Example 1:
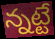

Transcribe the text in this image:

న్నట్టే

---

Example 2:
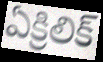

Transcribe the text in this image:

ఏక్రిలిక్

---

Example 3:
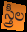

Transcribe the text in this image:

స్త్రీల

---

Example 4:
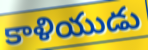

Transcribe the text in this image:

కాళియుడు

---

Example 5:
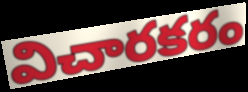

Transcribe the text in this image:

విచారకరం